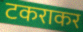
टकराकर